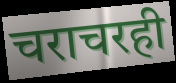
चराचरही